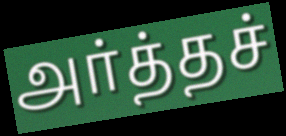
அர்த்தச்